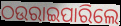
ଠଉରାଇପାରିଲେ